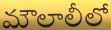
మౌలాలీలో